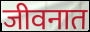
जीवनात